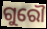
ଗୁରୌ